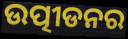
ଉତ୍ପୀଡନର